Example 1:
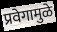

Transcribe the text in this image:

प्रवेगामुळे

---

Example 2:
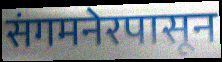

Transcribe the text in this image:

संगमनेरपासून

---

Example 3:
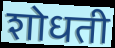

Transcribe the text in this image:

शोधती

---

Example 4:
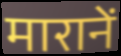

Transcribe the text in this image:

मारानें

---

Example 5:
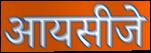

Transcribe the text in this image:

आयसीजे